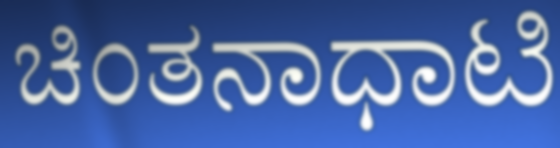
ಚಿಂತನಾಧಾಟಿ